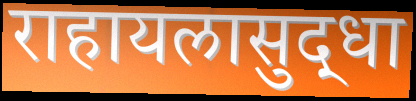
राहायलासुद्धा